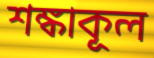
শঙ্কাকূল